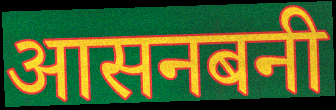
आसनबनी